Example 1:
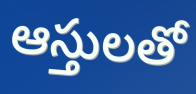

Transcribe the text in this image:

ఆస్తులతో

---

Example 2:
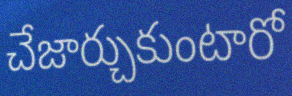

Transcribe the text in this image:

చేజార్చుకుంటారో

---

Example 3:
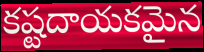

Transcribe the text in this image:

కష్టదాయకమైన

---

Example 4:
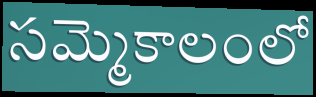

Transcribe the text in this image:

సమ్మెకాలంలో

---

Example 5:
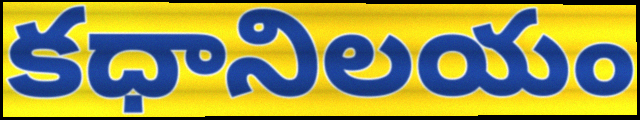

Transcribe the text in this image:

కధానిలయం